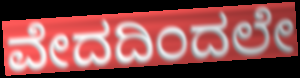
ವೇದದಿಂದಲೇ